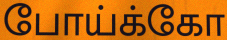
போய்க்கோ